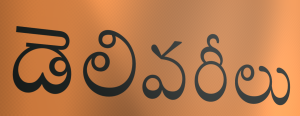
డెలివరీలు